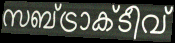
സബ്ട്രാക്ടീവ്